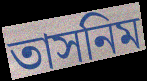
তাসনিম